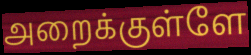
அறைக்குள்ளே